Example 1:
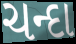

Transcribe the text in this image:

ચન્દા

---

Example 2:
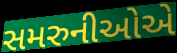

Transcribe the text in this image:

સમરુનીઓએ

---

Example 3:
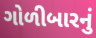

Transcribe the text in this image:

ગોળીબારનું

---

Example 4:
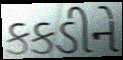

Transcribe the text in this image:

કકડીને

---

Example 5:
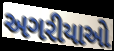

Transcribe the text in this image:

અગરીયાઓ